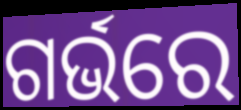
ଗର୍ଭରେ